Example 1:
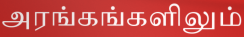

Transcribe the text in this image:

அரங்கங்களிலும்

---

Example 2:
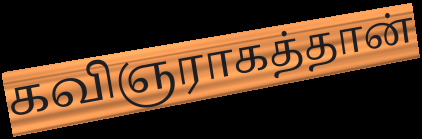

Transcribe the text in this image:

கவிஞராகத்தான்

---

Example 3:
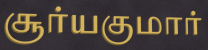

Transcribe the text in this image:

சூர்யகுமார்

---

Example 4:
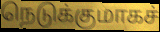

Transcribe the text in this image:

நெடுக்குமாகச்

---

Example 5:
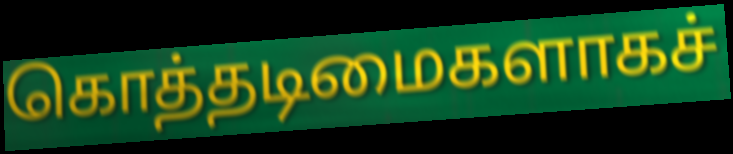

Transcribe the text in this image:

கொத்தடிமைகளாகச்